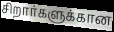
சிறார்களுக்கான